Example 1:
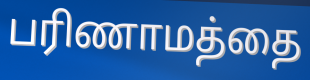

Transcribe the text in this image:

பரிணாமத்தை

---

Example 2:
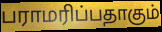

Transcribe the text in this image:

பராமரிப்பதாகும்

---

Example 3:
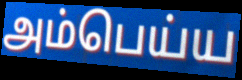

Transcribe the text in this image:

அம்பெய்ய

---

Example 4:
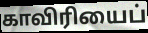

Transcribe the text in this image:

காவிரியைப்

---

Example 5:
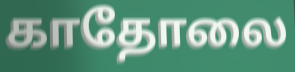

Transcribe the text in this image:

காதோலை